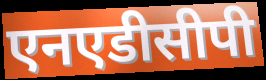
एनएडीसीपी